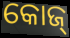
କୋଜ୍